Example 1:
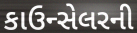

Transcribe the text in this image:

કાઉન્સેલરની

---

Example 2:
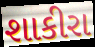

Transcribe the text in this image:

શાકીરા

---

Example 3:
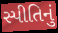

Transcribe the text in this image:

સ્પીતિનું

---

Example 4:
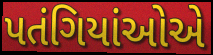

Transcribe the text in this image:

પતંગિયાંઓએ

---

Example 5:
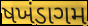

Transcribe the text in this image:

ષખંડાગમ